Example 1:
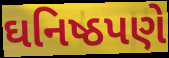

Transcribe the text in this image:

ઘનિષ્ઠપણે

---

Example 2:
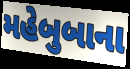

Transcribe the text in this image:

મહેબુબાના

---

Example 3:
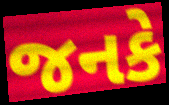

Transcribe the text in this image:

જનકે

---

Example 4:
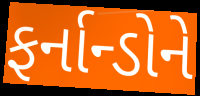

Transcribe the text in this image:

ફર્નાન્ડોને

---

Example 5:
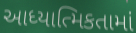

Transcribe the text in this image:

આધ્યાત્મિકતામાં